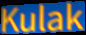
Kulak